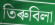
তিৰুবিলা